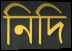
নিদি